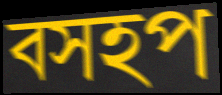
বসহপ